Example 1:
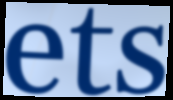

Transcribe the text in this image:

ets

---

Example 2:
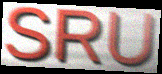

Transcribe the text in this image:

SRU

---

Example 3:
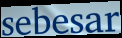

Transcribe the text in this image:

sebesar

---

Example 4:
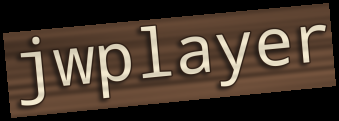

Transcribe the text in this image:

jwplayer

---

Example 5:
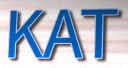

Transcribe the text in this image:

KAT